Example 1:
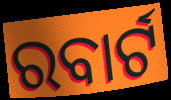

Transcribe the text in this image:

ରବାର୍ଟ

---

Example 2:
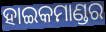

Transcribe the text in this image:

ହାଇକମାଣ୍ଡର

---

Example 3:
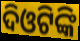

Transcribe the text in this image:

ଦିଓଟିଙ୍କି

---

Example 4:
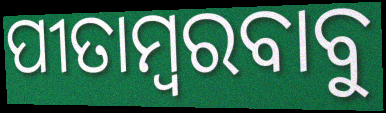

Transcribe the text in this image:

ପୀତାମ୍ବରବାବୁ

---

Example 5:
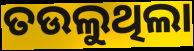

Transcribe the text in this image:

ତଉଲୁଥିଲା